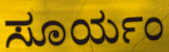
ಸೂರ್ಯಂ